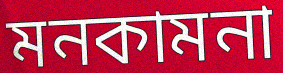
মনকামনা